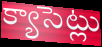
క్యాసెట్లు